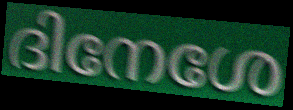
ദിനേശേ